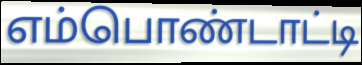
எம்பொண்டாட்டி